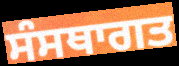
ਸੰਸਥਾਗਤ